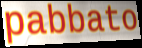
pabbato